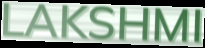
LAKSHMI